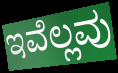
ಇವೆಲ್ಲವು